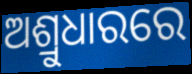
ଅଶ୍ରୁଧାରରେ